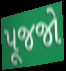
પૂજજો